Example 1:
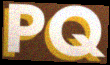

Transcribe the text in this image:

PQ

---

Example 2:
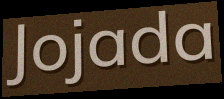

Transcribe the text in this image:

Jojada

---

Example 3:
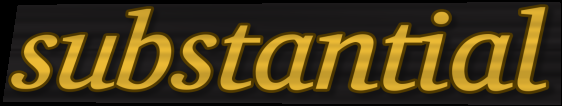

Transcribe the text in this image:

substantial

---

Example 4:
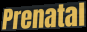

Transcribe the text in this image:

Prenatal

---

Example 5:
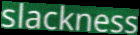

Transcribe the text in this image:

slackness